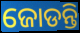
ଜୋଡନ୍ତି